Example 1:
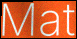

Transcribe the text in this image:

Mat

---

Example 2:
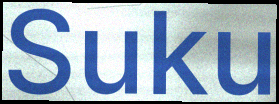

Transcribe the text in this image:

Suku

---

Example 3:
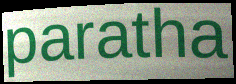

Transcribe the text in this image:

paratha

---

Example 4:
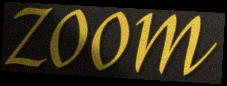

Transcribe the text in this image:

zoom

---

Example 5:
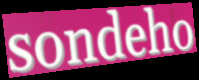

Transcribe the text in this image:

sondeho